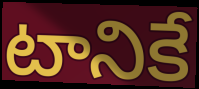
టానికే